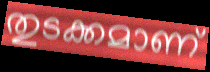
തുടക്കമാണ്